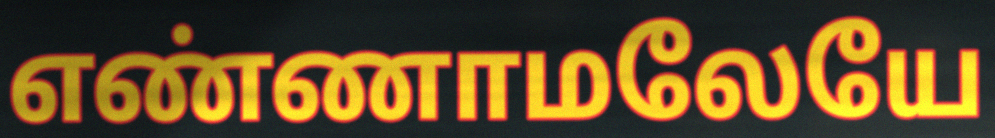
எண்ணாமலேயே